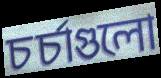
চর্চাগুলো